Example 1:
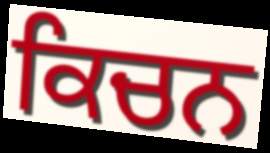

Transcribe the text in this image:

ਕਿਚਨ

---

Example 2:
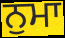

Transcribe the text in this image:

ਨੁਮਾ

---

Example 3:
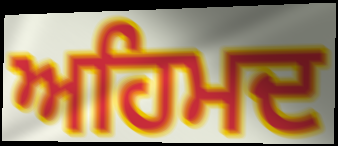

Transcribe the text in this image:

ਅਹਿਮਦ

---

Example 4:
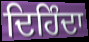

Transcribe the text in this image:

ਦਿਹਿੰਦਾ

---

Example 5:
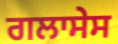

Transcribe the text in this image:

ਗਲਾਸੇਸ